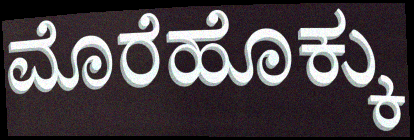
ಮೊರೆಹೊಕ್ಕು